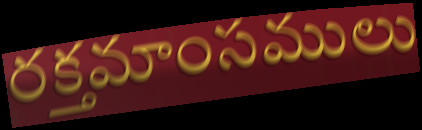
రక్తమాంసములు